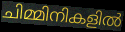
ചിമ്മിനികളിൽ